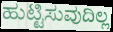
ಹುಟ್ಟಿಸುವುದಿಲ್ಲ